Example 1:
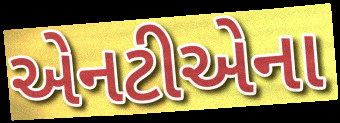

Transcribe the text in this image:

એનટીએના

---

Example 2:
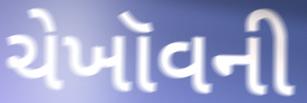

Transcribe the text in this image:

ચેખૉવની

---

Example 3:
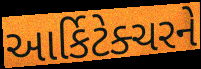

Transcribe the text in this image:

આર્કિટેક્ચરને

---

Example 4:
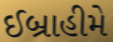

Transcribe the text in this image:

ઈબ્રાહીમે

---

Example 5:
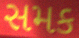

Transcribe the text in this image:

સમક